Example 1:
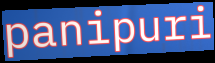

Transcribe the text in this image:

panipuri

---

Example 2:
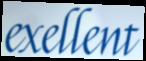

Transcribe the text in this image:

exellent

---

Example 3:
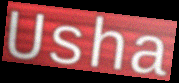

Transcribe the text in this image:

Usha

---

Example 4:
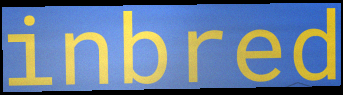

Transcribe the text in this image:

inbred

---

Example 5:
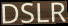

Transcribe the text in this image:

DSLR